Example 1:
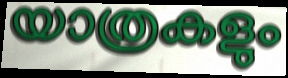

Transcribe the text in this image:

യാത്രകളും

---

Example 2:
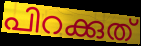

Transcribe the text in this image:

പിറക്കുത്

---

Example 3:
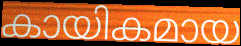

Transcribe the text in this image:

കായികമായ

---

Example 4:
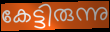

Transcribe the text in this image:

കേട്ടിരുന്നു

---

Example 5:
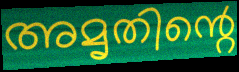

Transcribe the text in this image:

അമൃതിന്റെ